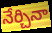
నేర్చినా